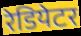
रेडियेटर